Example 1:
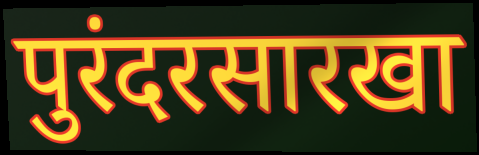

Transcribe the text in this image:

पुरंदरसारखा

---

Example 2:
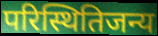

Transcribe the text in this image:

परिस्थितिजन्य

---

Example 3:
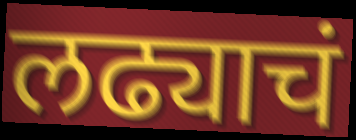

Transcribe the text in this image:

लढ्याचं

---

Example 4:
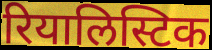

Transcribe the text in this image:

रियालिस्टिक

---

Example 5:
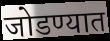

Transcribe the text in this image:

जोडण्यात